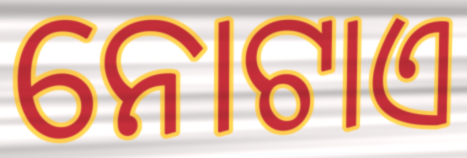
ନୋଟାଏ